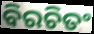
ବିରଚିତଂ